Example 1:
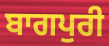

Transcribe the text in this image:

ਬਾਗਪੁਰੀ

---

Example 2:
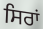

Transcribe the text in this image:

ਸਿਰਾਂ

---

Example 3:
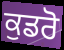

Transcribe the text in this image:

ਕੁਡਰੋ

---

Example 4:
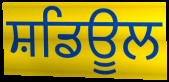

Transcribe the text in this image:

ਸ਼ਡਿਊਲ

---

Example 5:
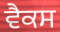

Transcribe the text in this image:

ਵੈਕਸ